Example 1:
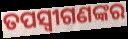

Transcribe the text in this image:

ତପସ୍ୱୀଗଣଙ୍କର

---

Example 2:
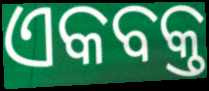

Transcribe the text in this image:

ଏକବକ୍ତ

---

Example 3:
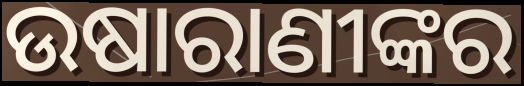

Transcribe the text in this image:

ଉଷାରାଣୀଙ୍କର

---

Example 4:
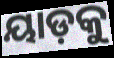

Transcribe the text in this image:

ୟାଡ଼କୁ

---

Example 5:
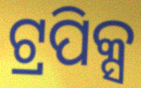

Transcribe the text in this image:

ଟ୍ରପିକ୍ସ